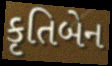
કૃતિબેન